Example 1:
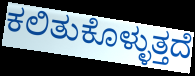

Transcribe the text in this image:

ಕಲಿತುಕೊಳ್ಳುತ್ತದೆ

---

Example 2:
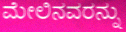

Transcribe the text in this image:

ಮೇಲಿನವರನ್ನು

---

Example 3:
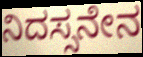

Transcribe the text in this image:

ನಿದಸ್ಸನೇನ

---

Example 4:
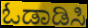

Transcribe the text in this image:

ಓಡಾಡಿಸಿ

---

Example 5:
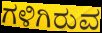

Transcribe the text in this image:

ಗಳಿಗಿರುವ